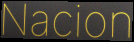
Nacion